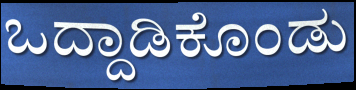
ಒದ್ದಾಡಿಕೊಂಡು